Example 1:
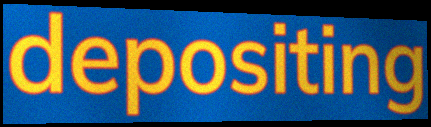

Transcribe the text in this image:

depositing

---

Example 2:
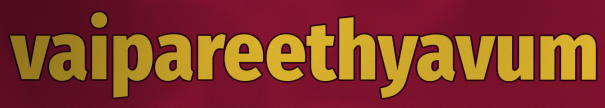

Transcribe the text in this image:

vaipareethyavum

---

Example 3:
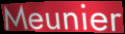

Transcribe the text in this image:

Meunier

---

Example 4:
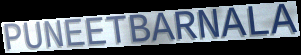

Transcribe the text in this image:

PUNEETBARNALA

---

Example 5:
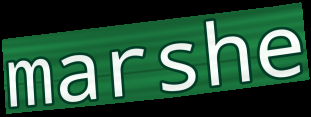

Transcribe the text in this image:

marshe